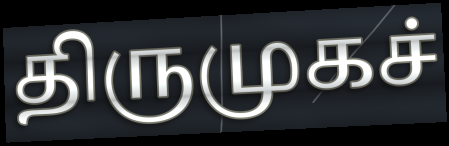
திருமுகச்